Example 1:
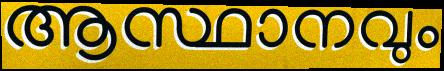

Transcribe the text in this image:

ആസ്ഥാനവും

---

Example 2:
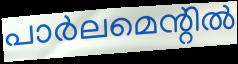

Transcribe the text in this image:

പാർലമെന്റിൽ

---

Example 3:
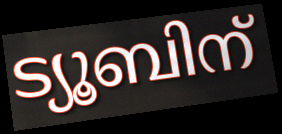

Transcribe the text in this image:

ട്യൂബിന്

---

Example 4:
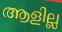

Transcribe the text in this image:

ആളില്ല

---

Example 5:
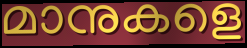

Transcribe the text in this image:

മാനുകളെ